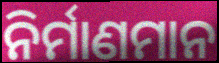
ନିର୍ମାଣମାନ